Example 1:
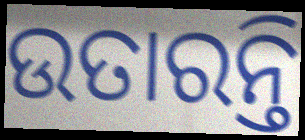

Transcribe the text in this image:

ଉତାରନ୍ତି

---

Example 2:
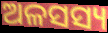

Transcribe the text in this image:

ଅଳସସ୍ୟ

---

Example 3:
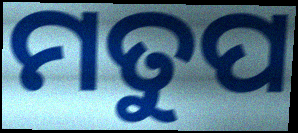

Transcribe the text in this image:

ମତୁପ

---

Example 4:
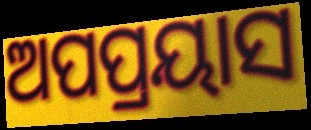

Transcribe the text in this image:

ଅପପ୍ରୟାସ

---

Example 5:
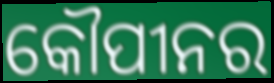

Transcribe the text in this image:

କୌପୀନର